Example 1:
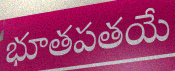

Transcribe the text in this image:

భూతపతయే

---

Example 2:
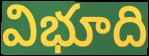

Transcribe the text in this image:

విభూది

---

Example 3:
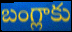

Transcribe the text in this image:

బంగ్లాకు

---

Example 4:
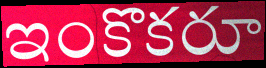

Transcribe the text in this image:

ఇంకొకరూ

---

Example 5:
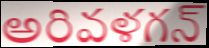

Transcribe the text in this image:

అరివళగన్